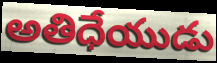
అతిధేయుడు